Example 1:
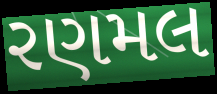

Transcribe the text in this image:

રણમલ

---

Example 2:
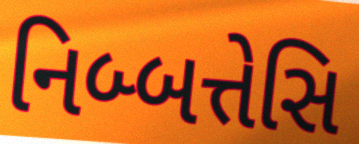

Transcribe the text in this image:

નિબ્બત્તેસિ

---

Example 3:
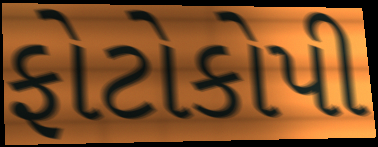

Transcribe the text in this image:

ફોટોકોપી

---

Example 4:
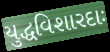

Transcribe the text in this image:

યુદ્ધવિશારદાઃ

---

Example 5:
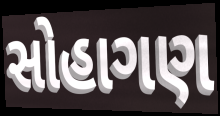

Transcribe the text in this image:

સોહાગણ